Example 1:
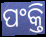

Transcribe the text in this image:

ପଂକ୍ତି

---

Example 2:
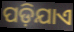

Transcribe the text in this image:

ପଡ଼ିଯାଏ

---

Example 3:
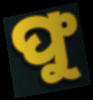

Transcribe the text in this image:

ଫୁ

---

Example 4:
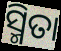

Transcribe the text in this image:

ସ୍ମିତା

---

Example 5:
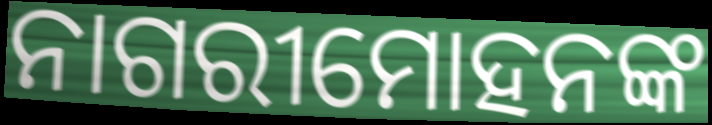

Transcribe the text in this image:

ନାଗରୀମୋହନଙ୍କ